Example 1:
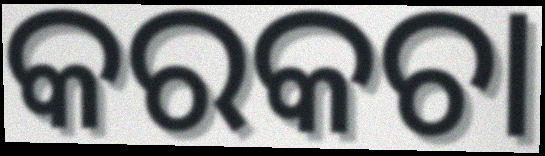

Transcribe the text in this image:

କରକଚା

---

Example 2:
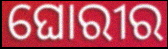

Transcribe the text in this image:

ଘୋରୀର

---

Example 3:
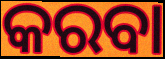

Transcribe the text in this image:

କରବା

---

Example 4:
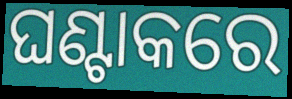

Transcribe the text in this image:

ଘଣ୍ଟାକରେ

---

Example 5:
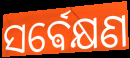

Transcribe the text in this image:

ସର୍ଵେକ୍ଷଣ